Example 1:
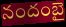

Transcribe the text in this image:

నందంబై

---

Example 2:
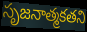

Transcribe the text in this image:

సృజనాత్మకతని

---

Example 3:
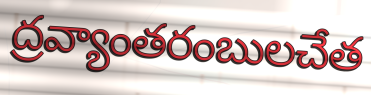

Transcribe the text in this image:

ద్రవ్యాంతరంబులచేత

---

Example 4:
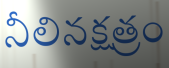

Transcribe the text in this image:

నీలినక్షత్రం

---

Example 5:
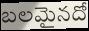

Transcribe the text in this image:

బలమైనదో